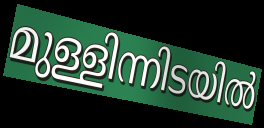
മുള്ളിന്നിടയിൽ